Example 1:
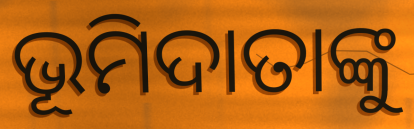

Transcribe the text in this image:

ଭୂମିଦାତାଙ୍କୁ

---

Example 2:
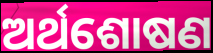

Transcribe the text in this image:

ଅର୍ଥଶୋଷଣ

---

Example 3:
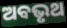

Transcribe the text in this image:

ଅବଭୃଥ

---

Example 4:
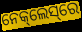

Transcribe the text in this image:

ନେକ୍‌ଲେସ୍‌ରେ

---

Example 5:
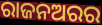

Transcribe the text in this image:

ରାଜନଅରର